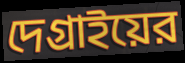
দেগ্রাইয়ের